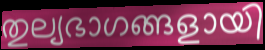
തുല്യഭാഗങ്ങളായി